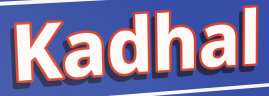
Kadhal